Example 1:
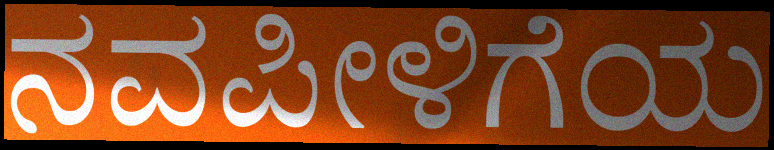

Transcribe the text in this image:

ನವಪೀಳಿಗೆಯ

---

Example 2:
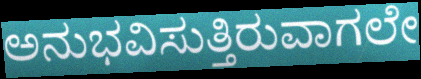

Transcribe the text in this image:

ಅನುಭವಿಸುತ್ತಿರುವಾಗಲೇ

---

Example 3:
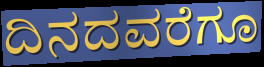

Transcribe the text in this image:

ದಿನದವರೆಗೂ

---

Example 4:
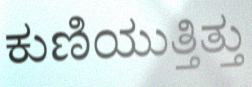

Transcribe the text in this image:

ಕುಣಿಯುತ್ತಿತ್ತು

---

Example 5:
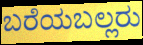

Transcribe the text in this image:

ಬರೆಯಬಲ್ಲರು